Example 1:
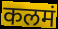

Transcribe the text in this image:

कलमं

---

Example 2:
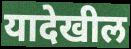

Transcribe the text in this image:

यादेखील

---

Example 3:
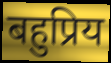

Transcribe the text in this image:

बहुप्रिय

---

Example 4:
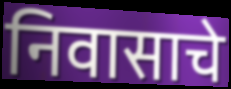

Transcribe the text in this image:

निवासाचे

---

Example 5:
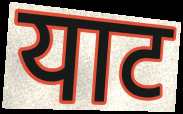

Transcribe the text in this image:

याट